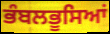
ਭੰਬਲਭੂਸਿਆਂ